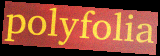
polyfolia